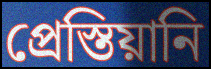
প্রেস্তিয়ানি